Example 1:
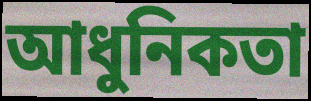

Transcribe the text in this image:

আধুনিকতা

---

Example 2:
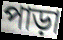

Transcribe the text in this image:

পাড়া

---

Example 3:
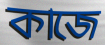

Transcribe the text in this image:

কাজে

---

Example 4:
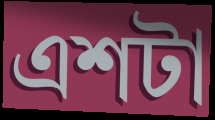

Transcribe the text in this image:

এশটা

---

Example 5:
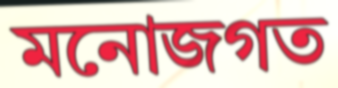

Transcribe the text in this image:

মনোজগত